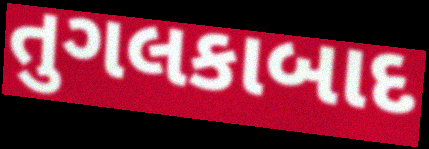
તુગલકાબાદ